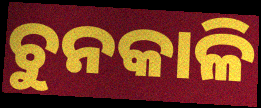
ଚୁନକାଳି